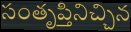
సంతృప్తినిచ్చిన